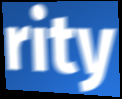
rity